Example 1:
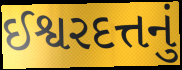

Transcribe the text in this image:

ઈશ્વરદત્તનું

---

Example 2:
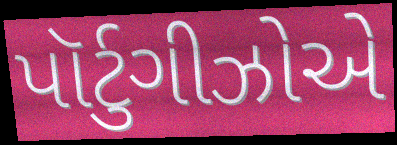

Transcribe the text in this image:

પૉર્ટુગીઝોએ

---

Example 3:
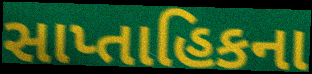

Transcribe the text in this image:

સાપ્તાહિકના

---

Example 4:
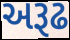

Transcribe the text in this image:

અરૂઢ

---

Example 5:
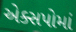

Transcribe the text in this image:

એક્સપોમાં